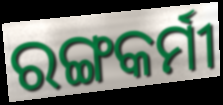
ରଙ୍ଗକର୍ମୀ